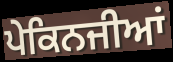
ਪੇਕਿਨਜੀਆਂ